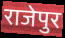
राजेपुर